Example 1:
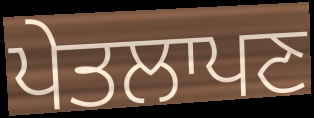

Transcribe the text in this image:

ਪੇਤਲਾਪਣ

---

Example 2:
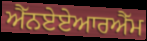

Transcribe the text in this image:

ਐੱਨਏਏਆਰਐੱਮ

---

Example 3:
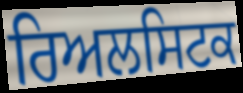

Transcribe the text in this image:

ਰਿਅਲਸਿਟਕ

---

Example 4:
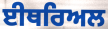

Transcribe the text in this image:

ਈਥਰਿਅਲ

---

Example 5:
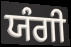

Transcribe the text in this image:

ਯੰਗੀ